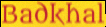
Badkhal